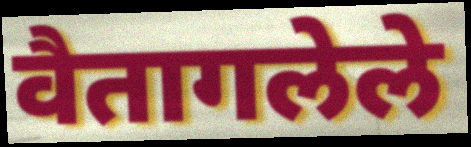
वैतागलेले